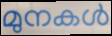
മുനകൾ